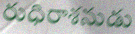
రుధిరాశనుడు